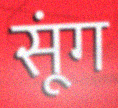
सूंग